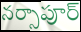
నర్సాపూర్